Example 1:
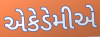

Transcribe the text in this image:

એકેડેમીએ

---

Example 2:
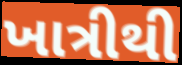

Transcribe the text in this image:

ખાત્રીથી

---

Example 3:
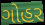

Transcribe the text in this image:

ગોહર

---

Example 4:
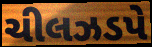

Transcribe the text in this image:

ચીલઝડપે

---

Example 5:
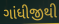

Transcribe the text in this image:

ગાંધીજીથી